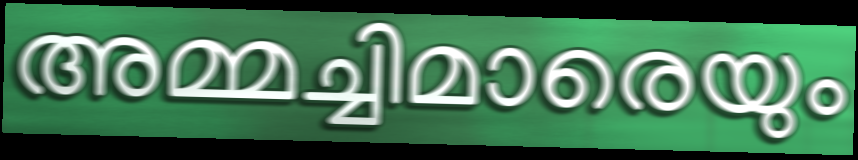
അമ്മച്ചിമാരെയും